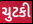
ચુટકી